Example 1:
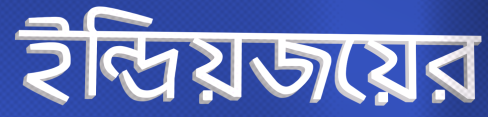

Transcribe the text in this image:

ইন্দ্রিয়জয়ের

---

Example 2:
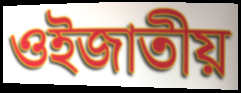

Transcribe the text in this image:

ওইজাতীয়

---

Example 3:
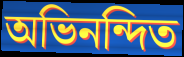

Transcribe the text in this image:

অভিনন্দিত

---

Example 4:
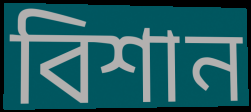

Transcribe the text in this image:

বিশান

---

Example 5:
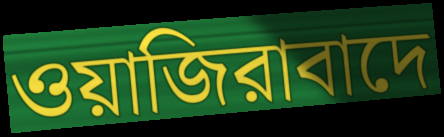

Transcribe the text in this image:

ওয়াজিরাবাদে